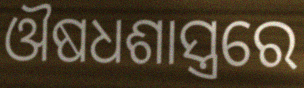
ଔଷଧଶାସ୍ତ୍ରରେ